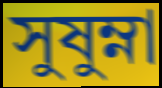
সুষুম্না